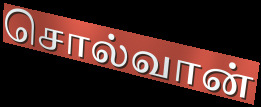
சொல்வான்